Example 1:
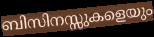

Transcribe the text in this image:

ബിസിനസ്സുകളെയും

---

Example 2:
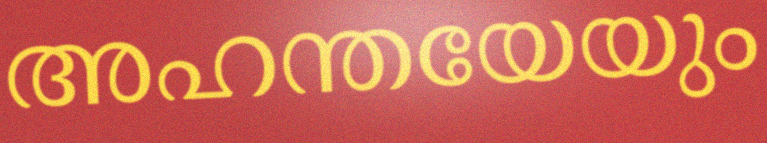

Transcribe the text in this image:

അഹന്തയേയും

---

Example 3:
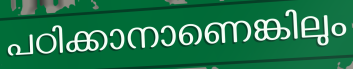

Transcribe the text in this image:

പഠിക്കാനാണെങ്കിലും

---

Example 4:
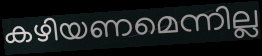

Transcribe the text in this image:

കഴിയണമെന്നില്ല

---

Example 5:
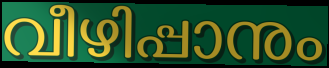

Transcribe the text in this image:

വീഴിപ്പാനും